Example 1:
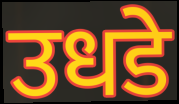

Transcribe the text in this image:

उधडे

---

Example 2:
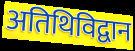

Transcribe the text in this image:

अतिथिविद्वान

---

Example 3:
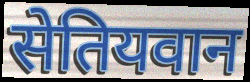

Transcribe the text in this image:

सेतियवान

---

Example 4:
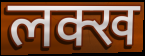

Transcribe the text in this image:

लक्ख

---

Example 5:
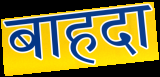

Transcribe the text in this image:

बाहदा